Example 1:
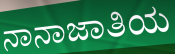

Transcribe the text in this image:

ನಾನಾಜಾತಿಯ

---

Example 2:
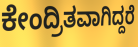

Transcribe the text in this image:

ಕೇಂದ್ರಿತವಾಗಿದ್ದರೆ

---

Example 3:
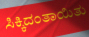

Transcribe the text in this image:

ಸಿಕ್ಕಿದಂತಾಯಿತು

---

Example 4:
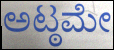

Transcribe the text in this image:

ಅಟ್ಠಮೇ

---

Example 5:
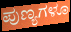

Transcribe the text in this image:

ಪುಣ್ಯಗಳೂ